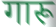
गारू